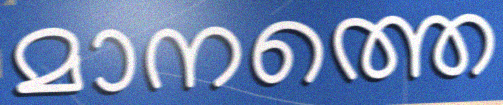
മാനത്തെ